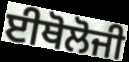
ਈਥੋਲੋਜੀ